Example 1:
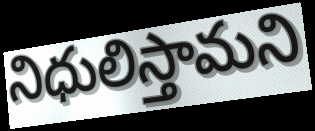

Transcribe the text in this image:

నిధులిస్తామని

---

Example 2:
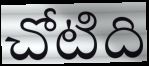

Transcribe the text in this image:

చోటిది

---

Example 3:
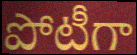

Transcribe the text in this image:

పోటీగా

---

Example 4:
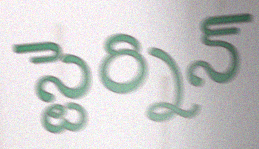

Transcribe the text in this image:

స్టెర్నిన్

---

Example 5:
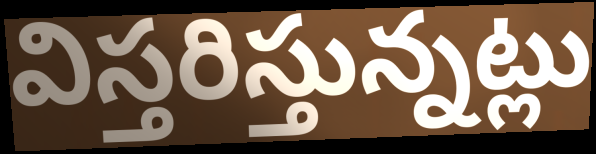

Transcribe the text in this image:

విస్తరిస్తున్నట్లు